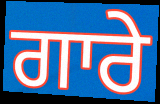
ਗਾਰੇ